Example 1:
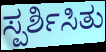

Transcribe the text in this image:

ಸ್ಪರ್ಶಿಸಿತು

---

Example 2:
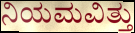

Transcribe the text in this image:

ನಿಯಮವಿತ್ತು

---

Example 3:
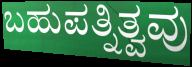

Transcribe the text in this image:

ಬಹುಪತ್ನಿತ್ವವು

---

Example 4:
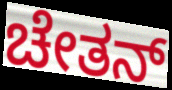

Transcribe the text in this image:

ಚೇತನ್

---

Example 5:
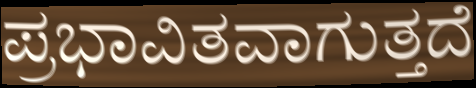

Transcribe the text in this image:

ಪ್ರಭಾವಿತವಾಗುತ್ತದೆ